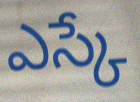
ఎస్కే